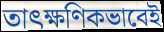
তাৎক্ষণিকভাবেই